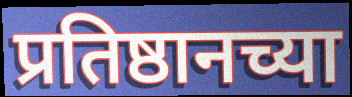
प्रतिष्ठानच्या